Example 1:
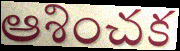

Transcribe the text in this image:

ఆశించక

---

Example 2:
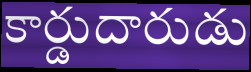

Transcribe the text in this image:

కార్డుదారుడు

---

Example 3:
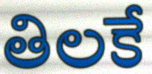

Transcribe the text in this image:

తిలకే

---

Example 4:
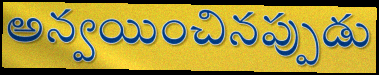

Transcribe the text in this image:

అన్వయించినప్పుడు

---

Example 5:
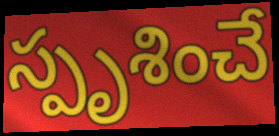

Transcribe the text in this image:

స్పృశించే